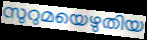
സുറുമയെഴുതിയ